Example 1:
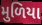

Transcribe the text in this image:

મુળિયા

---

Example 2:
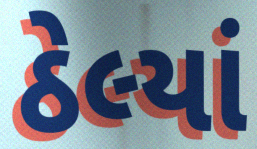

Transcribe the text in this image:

ઠેલ્યાં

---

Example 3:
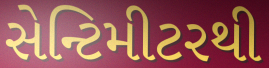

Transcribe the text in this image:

સેન્ટિમીટરથી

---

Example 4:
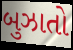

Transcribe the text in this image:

બુઝાતો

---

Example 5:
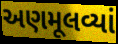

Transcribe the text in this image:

અણમૂલવ્યાં